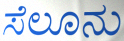
ಸೆಲೂನು